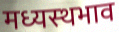
मध्यस्थभाव